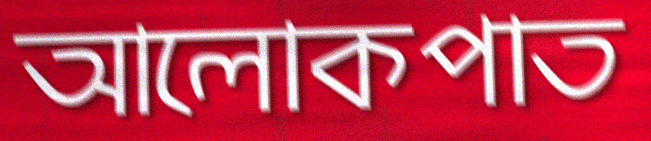
আলোকপাত